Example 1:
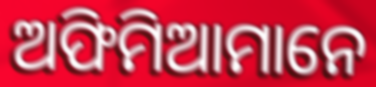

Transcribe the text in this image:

ଅଫିମିଆମାନେ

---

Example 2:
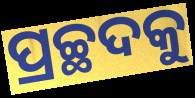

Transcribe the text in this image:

ପ୍ରଚ୍ଛଦକୁ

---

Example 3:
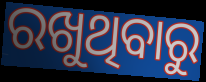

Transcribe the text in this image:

ରଖୁଥିବାରୁ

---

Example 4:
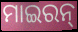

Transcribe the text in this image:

ମାଇରନ୍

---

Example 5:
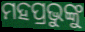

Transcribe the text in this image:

ମହପ୍ରଭୁଙ୍କୁ